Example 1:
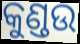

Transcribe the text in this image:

କୁଣ୍ଡଉ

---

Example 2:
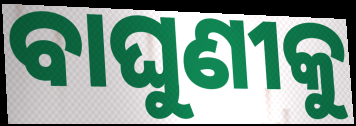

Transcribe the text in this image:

ବାଘୁଣୀକୁ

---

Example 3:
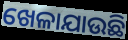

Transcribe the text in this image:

ଖେଳାଯାଉଛି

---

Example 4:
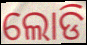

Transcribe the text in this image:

ଲୋଡି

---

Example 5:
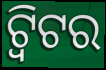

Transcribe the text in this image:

ଟ୍ୱିଟର